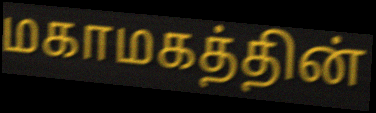
மகாமகத்தின்